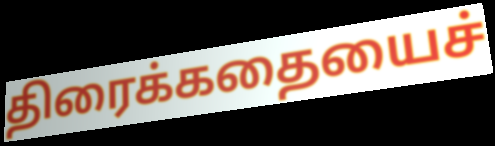
திரைக்கதையைச்